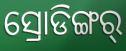
ସ୍ରୋଡିଙ୍ଗର୍